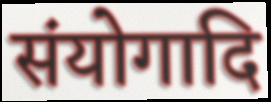
संयोगादि